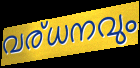
വര്ധനവും